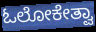
ಓಲೋಕೇತ್ವಾ